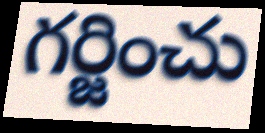
గర్జించు